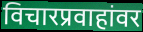
विचारप्रवाहांवर